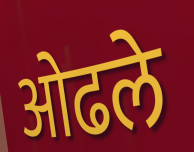
ओढले